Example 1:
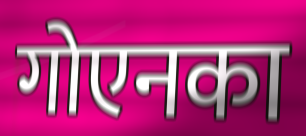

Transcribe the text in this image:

गोएनका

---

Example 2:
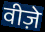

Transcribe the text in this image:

वीज़े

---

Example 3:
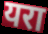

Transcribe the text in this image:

यरा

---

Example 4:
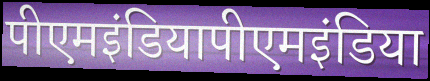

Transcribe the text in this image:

पीएमइंडियापीएमइंडिया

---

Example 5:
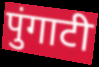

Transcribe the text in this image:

पुंगाटी